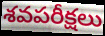
శవపరీక్షలు